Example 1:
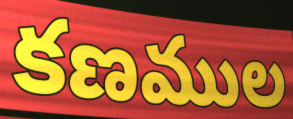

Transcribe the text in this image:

కణముల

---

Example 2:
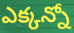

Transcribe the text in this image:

ఎక్కన్నో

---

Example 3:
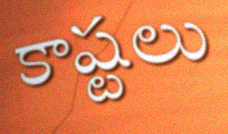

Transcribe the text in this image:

కాష్టలు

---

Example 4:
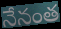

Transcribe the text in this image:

నేనంత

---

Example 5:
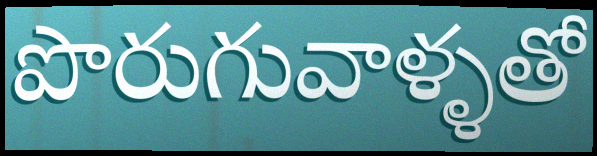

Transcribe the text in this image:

పొరుగువాళ్ళతో